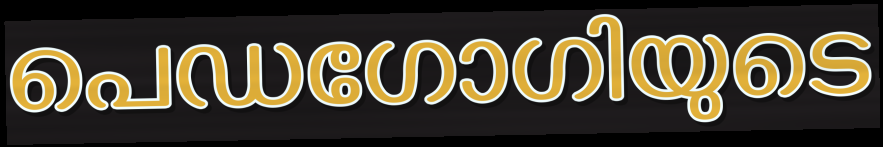
പെഡഗോഗിയുടെ